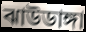
ঝাউডাঙ্গা